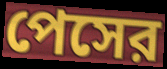
পেসের